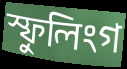
স্ফুলিংগ